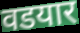
वडयार